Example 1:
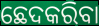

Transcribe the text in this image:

ଛେଦକରିବା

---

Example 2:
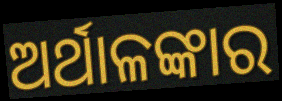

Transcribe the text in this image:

ଅର୍ଥାଳଙ୍କାର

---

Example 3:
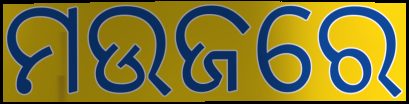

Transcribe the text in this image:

ମଉଜରେ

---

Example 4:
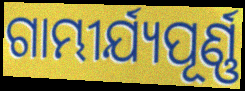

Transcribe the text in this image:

ଗାମ୍ଭୀର୍ଯ୍ୟପୂର୍ଣ୍ଣ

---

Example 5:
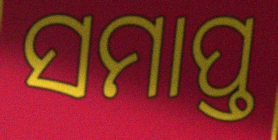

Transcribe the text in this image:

ସମାପ୍ତ